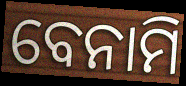
ବେନାମି